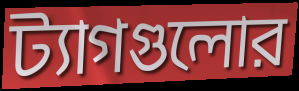
ট্যাগগুলোর